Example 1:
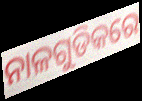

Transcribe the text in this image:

ନାଳଗୁଡିକରେ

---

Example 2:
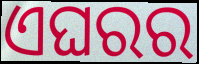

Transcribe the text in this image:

ଏଘରର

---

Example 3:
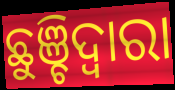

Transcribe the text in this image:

ଛୁଞ୍ଚିଦ୍ଵାରା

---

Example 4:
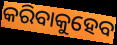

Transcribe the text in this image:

କରିବାକୁହେବ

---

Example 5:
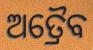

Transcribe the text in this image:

ଅତ୍ରୈବ